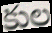
కుల